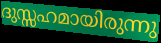
ദുസ്സഹമായിരുന്നു